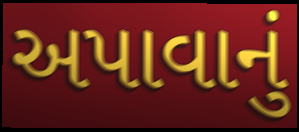
અપાવાનું